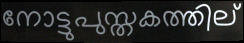
നോട്ടുപുസ്തകത്തില്